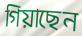
গিয়াছেন